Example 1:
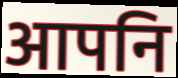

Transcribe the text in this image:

आपनि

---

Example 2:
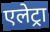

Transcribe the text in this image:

एलेट्रा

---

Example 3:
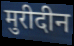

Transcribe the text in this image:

मुरीदीन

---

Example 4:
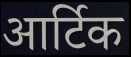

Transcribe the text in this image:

आर्टिक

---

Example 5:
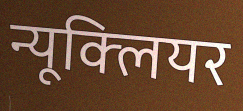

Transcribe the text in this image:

न्‍यूक्‍लियर